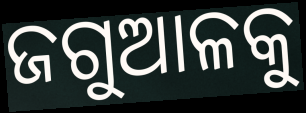
ଜଗୁଆଳକୁ